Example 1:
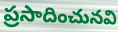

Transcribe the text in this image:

ప్రసాదించునవి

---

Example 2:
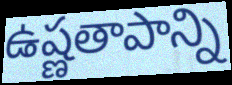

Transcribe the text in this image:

ఉష్ణతాపాన్ని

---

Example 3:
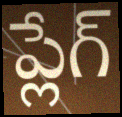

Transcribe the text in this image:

ప్లేగ్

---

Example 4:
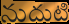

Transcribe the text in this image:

నుదుటి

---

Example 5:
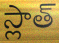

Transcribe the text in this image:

స్లాత్